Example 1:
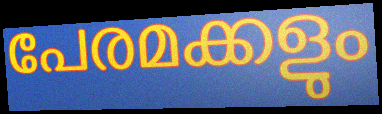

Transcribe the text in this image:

പേരമക്കളും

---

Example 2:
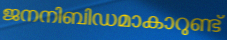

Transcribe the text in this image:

ജനനിബിഡമാകാറുണ്ട്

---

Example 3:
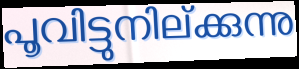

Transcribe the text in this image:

പൂവിട്ടുനില്ക്കുന്നു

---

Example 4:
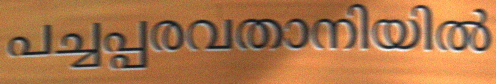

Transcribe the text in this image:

പച്ചപ്പരവതാനിയിൽ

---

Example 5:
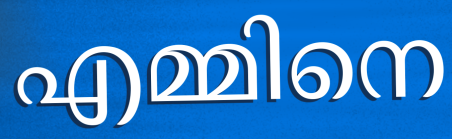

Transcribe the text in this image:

എമ്മിനെ